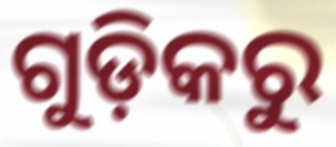
ଗୁଡ଼ିକରୁ